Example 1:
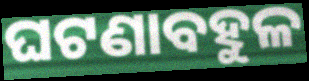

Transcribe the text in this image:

ଘଟଣାବହୁଳ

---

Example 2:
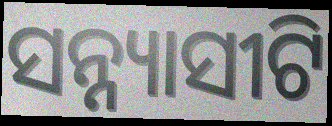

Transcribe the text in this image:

ସନ୍ନ୍ୟାସୀଟି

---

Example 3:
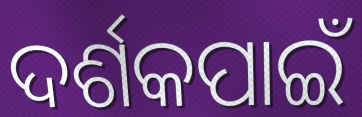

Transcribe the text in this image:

ଦର୍ଶକପାଇଁ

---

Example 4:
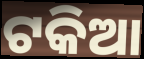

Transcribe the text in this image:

ଟକିଆ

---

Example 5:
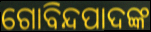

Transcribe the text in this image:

ଗୋବିନ୍ଦପାଦଙ୍କ